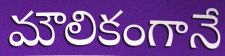
మౌలికంగానే